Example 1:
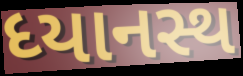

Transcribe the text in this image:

ધ્યાનસ્થ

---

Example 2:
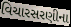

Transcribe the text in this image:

વિચારસરણીના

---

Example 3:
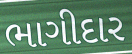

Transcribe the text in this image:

ભાગીદાર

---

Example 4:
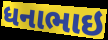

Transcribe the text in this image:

ધનાભાઇ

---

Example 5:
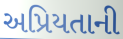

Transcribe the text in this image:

અપ્રિયતાની